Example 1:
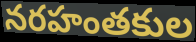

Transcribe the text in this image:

నరహంతకుల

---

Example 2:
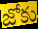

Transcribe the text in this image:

జోకు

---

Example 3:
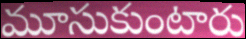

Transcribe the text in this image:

మూసుకుంటారు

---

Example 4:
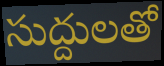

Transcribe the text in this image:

సుద్దులతో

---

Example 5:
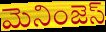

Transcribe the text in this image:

మెనింజెస్